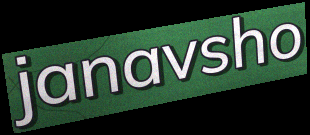
janavsho